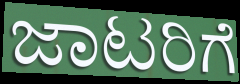
ಜಾಟರಿಗೆ